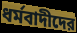
ধর্মবাদীদের